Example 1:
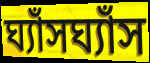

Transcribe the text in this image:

ঘ্যাঁসঘ্যাঁস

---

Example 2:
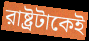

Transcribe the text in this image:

রাষ্ট্রটাকেই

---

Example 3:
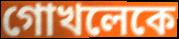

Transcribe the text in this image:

গোখলেকে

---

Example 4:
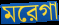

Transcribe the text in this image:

মরেগা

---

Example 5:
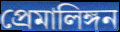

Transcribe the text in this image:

প্রেমালিঙ্গন